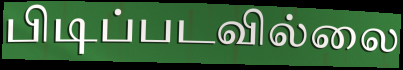
பிடிப்படவில்லை